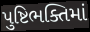
પુષ્ટિભક્તિમાં